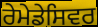
ਰੇਮੇਡੇਸਿਵਰ